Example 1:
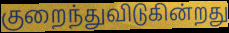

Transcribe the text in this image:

குறைந்துவிடுகின்றது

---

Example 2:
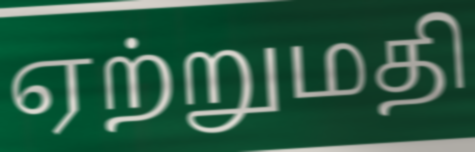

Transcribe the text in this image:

ஏற்றுமதி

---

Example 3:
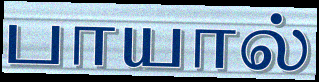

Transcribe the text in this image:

பாயால்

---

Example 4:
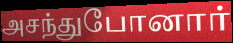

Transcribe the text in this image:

அசந்துபோனார்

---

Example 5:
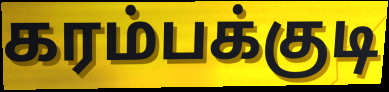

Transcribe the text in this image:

கரம்பக்குடி